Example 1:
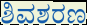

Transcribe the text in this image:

ಶಿವಶರಣ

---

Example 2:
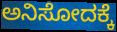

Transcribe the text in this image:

ಅನಿಸೋದಕ್ಕೆ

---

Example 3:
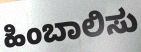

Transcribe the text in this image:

ಹಿಂಬಾಲಿಸು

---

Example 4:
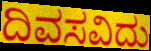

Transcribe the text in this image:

ದಿವಸವಿದು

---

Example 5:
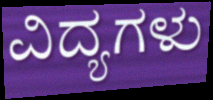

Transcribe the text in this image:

ವಿದ್ಯಗಳು